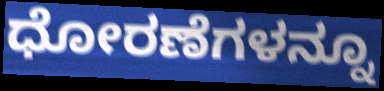
ಧೋರಣೆಗಳನ್ನೂ